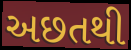
અછતથી